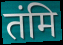
तंमि